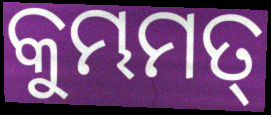
କୁମ୍ଭମତ୍